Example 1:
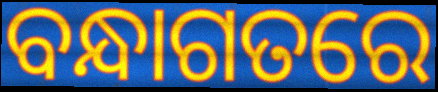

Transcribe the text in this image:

ବନ୍ଧାଗତରେ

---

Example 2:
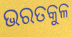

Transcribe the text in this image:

ଭରତକୁଳ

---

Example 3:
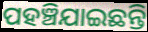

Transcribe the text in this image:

ପହଞ୍ଚିଯାଇଛନ୍ତି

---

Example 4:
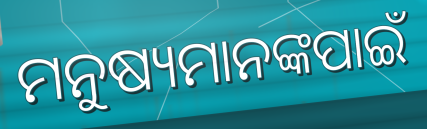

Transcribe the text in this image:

ମନୁଷ୍ୟମାନଙ୍କପାଇଁ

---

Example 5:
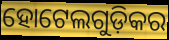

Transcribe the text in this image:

ହୋଟେଲଗୁଡ଼ିକର